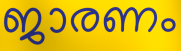
ജാരണം